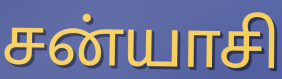
சன்யாசி